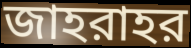
জাহরাহর